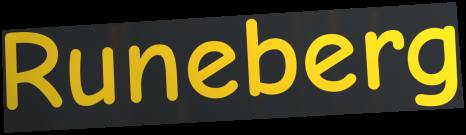
Runeberg